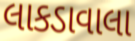
લાકડાવાલા